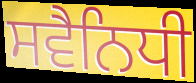
ਸਵੈਨਿਧੀ